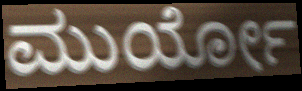
ಮುರ್ಯೋ